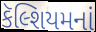
કૅલ્શિયમનાં